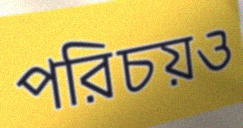
পরিচয়ও